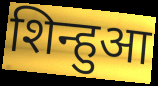
शिन्हुआ